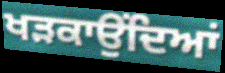
ਖੜਕਾਉਂਦਿਆਂ